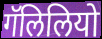
गॅलिलियो